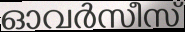
ഓവർസീസ്